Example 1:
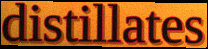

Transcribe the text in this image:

distillates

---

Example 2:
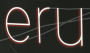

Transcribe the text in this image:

eru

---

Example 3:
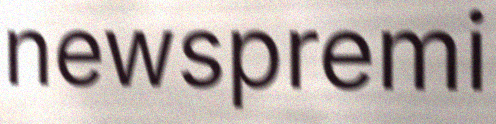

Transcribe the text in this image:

newspremi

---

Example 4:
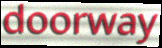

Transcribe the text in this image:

doorway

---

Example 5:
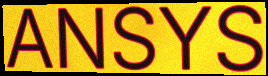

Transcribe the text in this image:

ANSYS